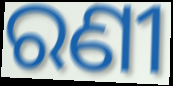
ରଣୀ